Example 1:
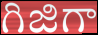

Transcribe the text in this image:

గిజిగా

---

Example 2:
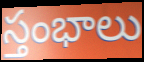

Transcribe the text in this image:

స్తంభాలు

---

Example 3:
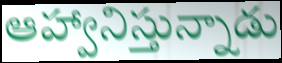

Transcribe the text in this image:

ఆహ్వానిస్తున్నాడు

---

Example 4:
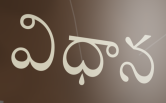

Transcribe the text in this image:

విధాన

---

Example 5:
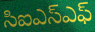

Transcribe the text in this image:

సిఐఎస్ఎఫ్